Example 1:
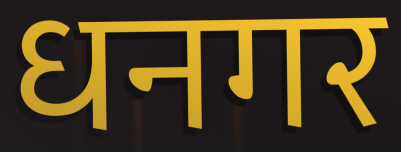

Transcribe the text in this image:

धनगर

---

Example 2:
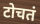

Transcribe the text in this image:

टोचतं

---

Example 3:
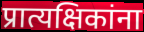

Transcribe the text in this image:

प्रात्यक्षिकांना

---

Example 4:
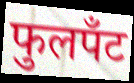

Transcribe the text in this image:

फुलपँट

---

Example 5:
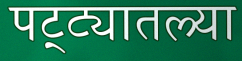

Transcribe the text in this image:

पट्ट्यातल्या